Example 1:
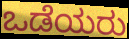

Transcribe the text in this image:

ಒಡೆಯರು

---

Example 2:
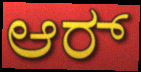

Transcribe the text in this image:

ಆರ್‍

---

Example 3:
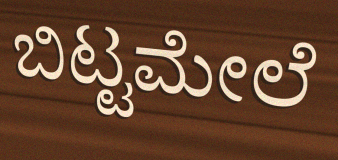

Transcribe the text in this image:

ಬಿಟ್ಟಮೇಲೆ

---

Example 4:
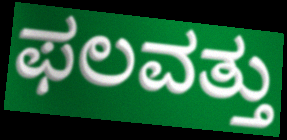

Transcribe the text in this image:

ಫಲವತ್ತು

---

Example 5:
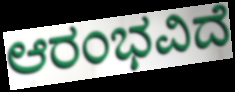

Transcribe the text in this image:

ಆರಂಭವಿದೆ